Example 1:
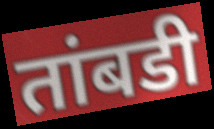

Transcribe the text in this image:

तांबडी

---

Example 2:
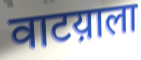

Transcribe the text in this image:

वाटय़ाला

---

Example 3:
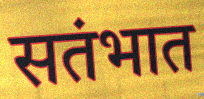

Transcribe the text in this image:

सतंभात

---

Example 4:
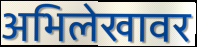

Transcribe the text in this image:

अभिलेखावर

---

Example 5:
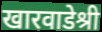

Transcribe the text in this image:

खारवाडेश्री